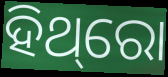
ହିଥ୍‌ରୋ